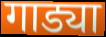
गाड्या